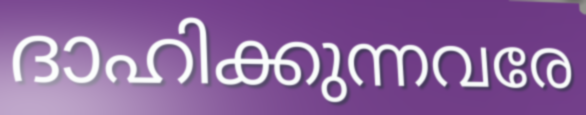
ദാഹിക്കുന്നവരേ